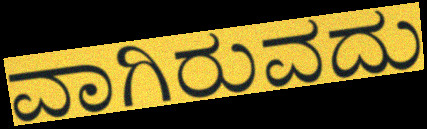
ವಾಗಿರುವದು